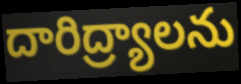
దారిద్ర్యాలను